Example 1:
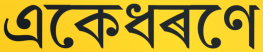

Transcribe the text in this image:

একেধৰণে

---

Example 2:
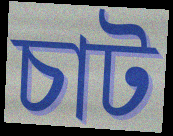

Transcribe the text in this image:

চাট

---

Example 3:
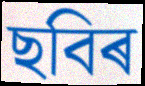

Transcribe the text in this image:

ছবিৰ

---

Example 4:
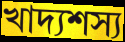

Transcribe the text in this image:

খাদ্যশস্য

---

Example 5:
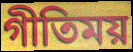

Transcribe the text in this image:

গীতিময়